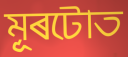
মূৰটোত